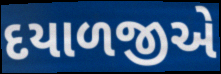
દયાળજીએ